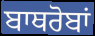
ਬਾਥਰੋਬਾਂ